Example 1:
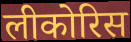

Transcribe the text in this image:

लीकोरिस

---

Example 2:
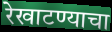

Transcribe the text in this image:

रेखाटण्याचा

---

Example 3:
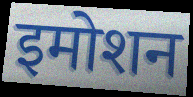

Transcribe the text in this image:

इमोशन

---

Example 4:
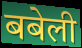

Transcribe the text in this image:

बबेली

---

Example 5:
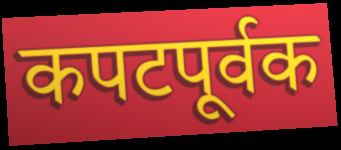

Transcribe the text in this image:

कपटपूर्वक